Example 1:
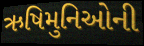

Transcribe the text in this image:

ઋષિમુનિઓની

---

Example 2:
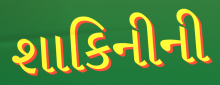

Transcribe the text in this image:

શાકિનીની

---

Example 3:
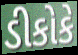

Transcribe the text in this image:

ડીકોકે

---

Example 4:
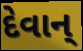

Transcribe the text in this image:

દેવાન્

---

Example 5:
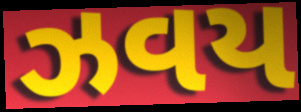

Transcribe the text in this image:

ઝવય